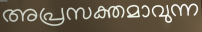
അപ്രസക്തമാവുന്ന